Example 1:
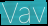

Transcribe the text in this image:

Vav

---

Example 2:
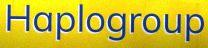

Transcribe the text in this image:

Haplogroup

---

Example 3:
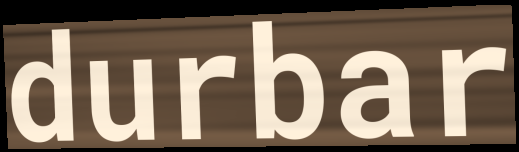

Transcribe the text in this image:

durbar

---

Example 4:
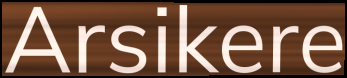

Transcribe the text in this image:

Arsikere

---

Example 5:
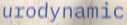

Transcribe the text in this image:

urodynamic